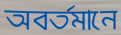
অবর্তমানে